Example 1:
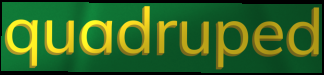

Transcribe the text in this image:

quadruped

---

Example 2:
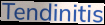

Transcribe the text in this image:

Tendinitis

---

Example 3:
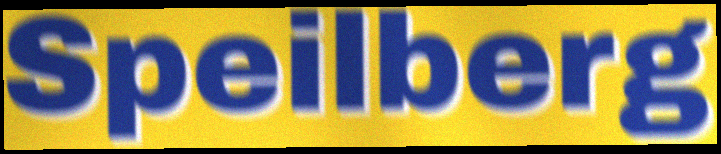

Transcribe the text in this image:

Speilberg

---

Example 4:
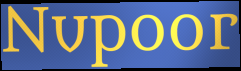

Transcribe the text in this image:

Nupoor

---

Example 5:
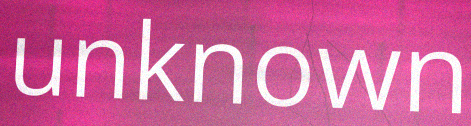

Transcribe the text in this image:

unknown